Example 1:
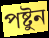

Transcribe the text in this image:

পষ্টুন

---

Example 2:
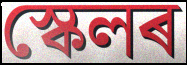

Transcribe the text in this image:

স্কেলৰ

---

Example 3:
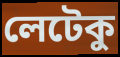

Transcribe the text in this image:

লেটেকু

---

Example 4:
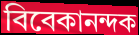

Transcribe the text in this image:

বিবেকানন্দক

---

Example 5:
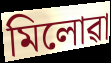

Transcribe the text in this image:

মিলোৱা